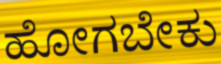
ಹೋಗಬೇಕು